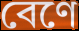
বেণে